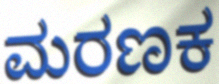
ಮರಣಕ